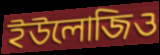
ইউলোজিও